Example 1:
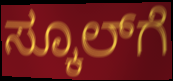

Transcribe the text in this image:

ಸ್ಕೂಲ್‌ಗೆ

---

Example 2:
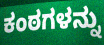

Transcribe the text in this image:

ಕಂಠಗಳನ್ನು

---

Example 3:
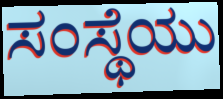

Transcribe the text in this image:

ಸಂಸ್ಥೆಯು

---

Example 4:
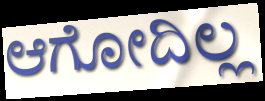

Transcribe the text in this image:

ಆಗೋದಿಲ್ಲ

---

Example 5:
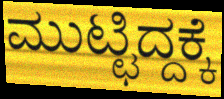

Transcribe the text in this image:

ಮುಟ್ಟಿದ್ದಕ್ಕೆ